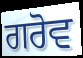
ਗਰੋਵ